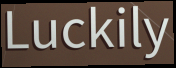
Luckily